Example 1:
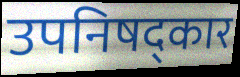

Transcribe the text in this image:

उपनिषद्कार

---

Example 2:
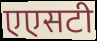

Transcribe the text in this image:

एएसटी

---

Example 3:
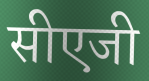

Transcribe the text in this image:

सीएजी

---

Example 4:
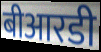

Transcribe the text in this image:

बीआरडी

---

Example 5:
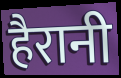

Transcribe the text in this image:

हैरानी